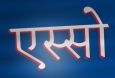
एस्सो